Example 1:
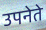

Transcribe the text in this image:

उपनेते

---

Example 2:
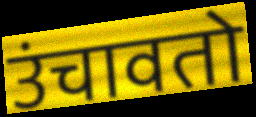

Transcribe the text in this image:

उंचावतो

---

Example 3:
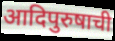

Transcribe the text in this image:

आदिपुरुषाची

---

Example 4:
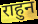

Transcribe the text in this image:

राहुन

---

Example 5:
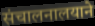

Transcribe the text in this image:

संचालनालयाने